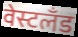
वेस्टलँड